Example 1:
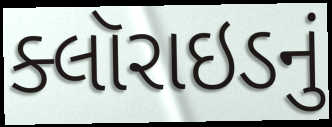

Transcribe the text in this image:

ક્લૉરાઇડનું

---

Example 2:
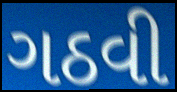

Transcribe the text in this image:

ગઠવી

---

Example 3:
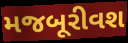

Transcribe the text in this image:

મજબૂરીવશ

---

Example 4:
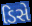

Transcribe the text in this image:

ડિસે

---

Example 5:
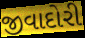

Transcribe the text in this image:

જીવાદોરી